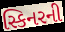
સ્કિનરની